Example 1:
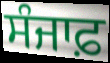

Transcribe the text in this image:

ਸੰਜਾਫ਼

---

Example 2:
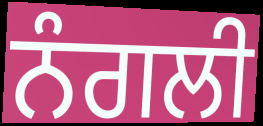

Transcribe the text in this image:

ਨੰਗਲੀ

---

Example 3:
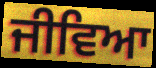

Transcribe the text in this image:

ਜੀਵਿਆ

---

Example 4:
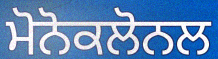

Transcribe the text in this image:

ਮੋਨੋਕਲੋਨਲ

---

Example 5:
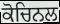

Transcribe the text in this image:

ਕੋਚਿਨਲ